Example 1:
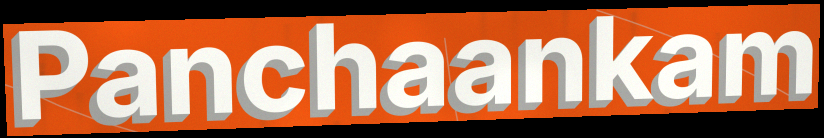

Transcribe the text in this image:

Panchaankam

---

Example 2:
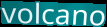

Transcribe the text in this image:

volcano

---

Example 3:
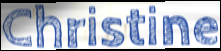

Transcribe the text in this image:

Christine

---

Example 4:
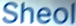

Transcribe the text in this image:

Sheol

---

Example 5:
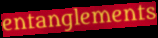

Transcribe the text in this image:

entanglements